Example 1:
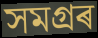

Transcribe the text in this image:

সমগ্ৰৰ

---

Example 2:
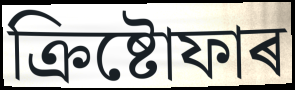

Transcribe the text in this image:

ক্ৰিষ্টোফাৰ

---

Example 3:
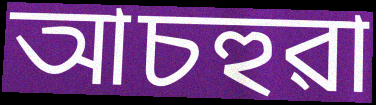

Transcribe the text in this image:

আচহুৱা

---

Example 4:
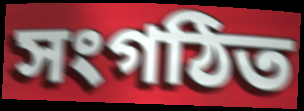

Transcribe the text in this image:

সংগঠিত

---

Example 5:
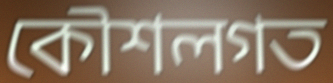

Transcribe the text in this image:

কৌশলগত